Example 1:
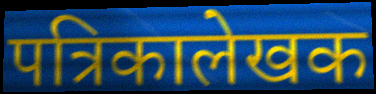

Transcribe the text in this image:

पत्रिकालेखक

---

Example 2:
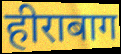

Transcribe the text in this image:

हीराबाग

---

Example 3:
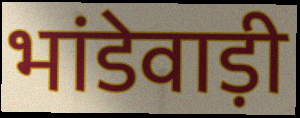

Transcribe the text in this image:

भांडेवाड़ी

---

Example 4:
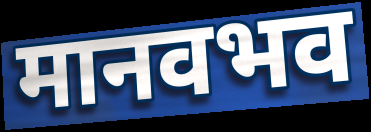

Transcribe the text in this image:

मानवभव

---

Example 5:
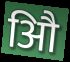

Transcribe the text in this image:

औि